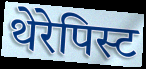
थेरेपिस्‍ट